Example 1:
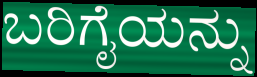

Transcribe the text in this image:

ಬರಿಗೈಯನ್ನು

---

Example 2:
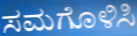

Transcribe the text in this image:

ಸಮಗೊಳಿಸಿ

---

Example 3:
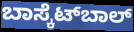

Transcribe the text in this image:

ಬಾಸ್ಕೆಟ್‍ಬಾಲ್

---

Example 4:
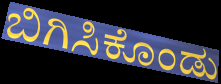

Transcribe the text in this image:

ಬಿಗಿಸಿಕೊಂಡು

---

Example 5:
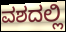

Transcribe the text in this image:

ವಶದಲ್ಲಿ